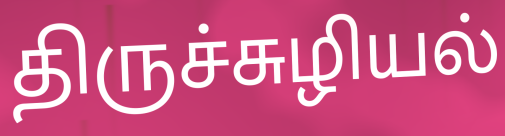
திருச்சுழியல்